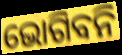
ଭୋଗିବନି